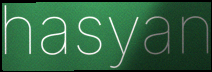
hasyan